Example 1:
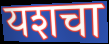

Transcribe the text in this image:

यशचा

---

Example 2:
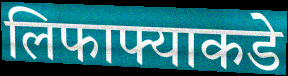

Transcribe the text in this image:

लिफाफ्याकडे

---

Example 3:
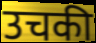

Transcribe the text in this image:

उचकी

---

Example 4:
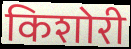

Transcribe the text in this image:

किशोरी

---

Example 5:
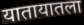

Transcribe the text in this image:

यातायातला